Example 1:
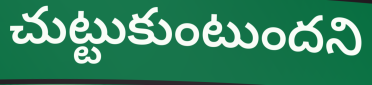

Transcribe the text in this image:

చుట్టుకుంటుందని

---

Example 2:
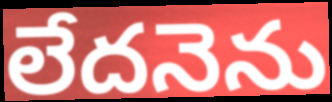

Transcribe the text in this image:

లేదనెను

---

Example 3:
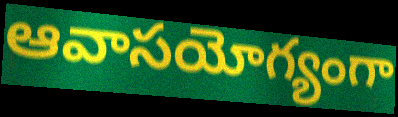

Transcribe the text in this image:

ఆవాసయోగ్యంగా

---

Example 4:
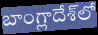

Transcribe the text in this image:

బాంగ్లాదేశ్‌లో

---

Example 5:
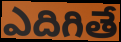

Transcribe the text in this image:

ఎదిగితే